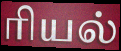
ரியல்